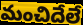
మంచిదేలే